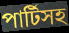
পার্টিসহ